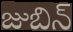
జుబిన్